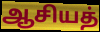
ஆசியத்